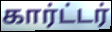
கார்ட்டர்